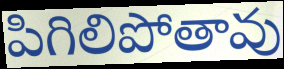
పిగిలిపోతావు